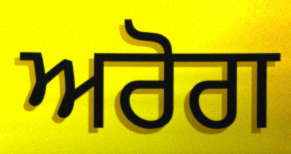
ਅਰੋਗ